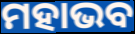
ମହାଭବ